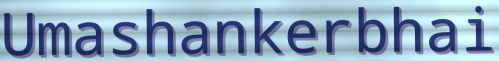
Umashankerbhai